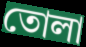
তোলা